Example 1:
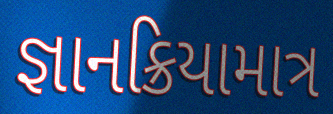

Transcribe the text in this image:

જ્ઞાનક્રિયામાત્ર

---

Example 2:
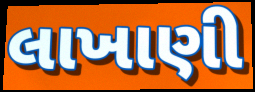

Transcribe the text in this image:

લાખાણી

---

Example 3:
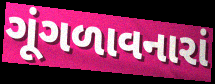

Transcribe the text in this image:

ગૂંગળાવનારાં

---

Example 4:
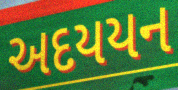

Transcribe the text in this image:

અદયયન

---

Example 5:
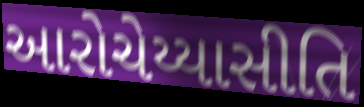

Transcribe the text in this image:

આરોચેય્યાસીતિ